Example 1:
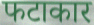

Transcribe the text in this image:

फटाकार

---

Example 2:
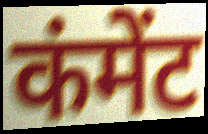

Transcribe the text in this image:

कंमेंट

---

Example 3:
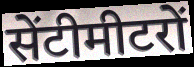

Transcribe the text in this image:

सेंटीमीटरों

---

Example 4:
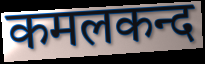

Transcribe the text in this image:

कमलकन्द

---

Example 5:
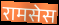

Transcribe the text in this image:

रामसेस